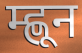
म्ह्णून